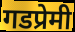
गडप्रेमी